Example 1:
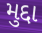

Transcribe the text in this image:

મુદ્દા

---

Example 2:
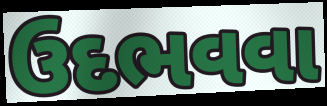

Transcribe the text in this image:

ઉદભવવા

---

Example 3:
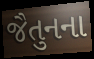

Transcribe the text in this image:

જૈતુનના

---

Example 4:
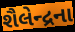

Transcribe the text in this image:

શૈલેન્દ્રના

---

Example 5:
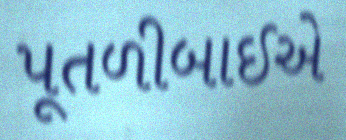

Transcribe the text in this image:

પૂતળીબાઈએ